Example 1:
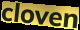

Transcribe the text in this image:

cloven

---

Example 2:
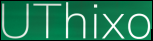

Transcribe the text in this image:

UThixo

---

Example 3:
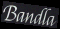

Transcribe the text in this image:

Bandla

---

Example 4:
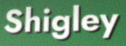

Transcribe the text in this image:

Shigley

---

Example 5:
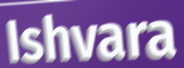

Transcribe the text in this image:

Ishvara